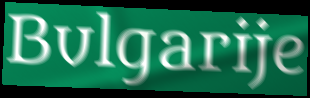
Bulgarije